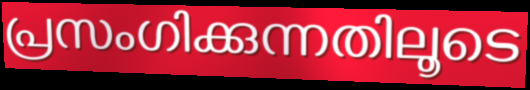
പ്രസംഗിക്കുന്നതിലൂടെ